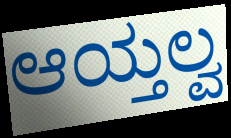
ಆಯ್ತಲ್ವ